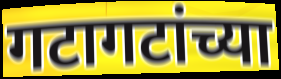
गटागटांच्या